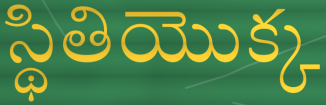
స్థితియొక్క